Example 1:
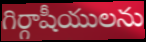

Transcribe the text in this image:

గిర్గాషీయులను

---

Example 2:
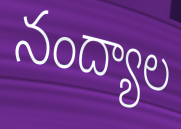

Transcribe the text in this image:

నంద్యాల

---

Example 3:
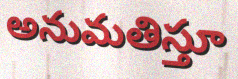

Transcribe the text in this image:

అనుమతిస్తూ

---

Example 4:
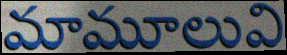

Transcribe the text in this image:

మామూలువి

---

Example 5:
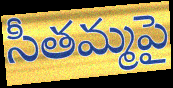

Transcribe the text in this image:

సీతమ్మపై